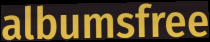
albumsfree